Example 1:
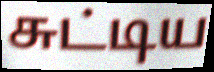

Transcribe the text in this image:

சுட்டிய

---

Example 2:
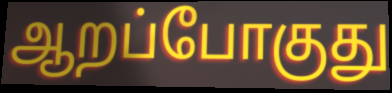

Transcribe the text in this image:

ஆறப்போகுது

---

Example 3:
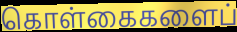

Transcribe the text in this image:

கொள்கைகளைப்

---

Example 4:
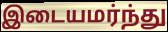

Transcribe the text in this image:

இடையமர்ந்து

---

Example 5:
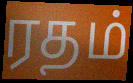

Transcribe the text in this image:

ரதம்